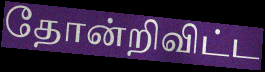
தோன்றிவிட்ட